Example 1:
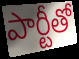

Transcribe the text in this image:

పార్టీతో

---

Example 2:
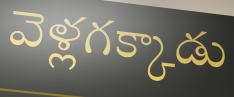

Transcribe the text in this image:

వెళ్లగక్కాడు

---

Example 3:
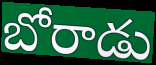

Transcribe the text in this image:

బోరాడు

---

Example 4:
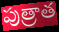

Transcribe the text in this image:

పుత్రాత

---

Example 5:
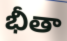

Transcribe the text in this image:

భీతా